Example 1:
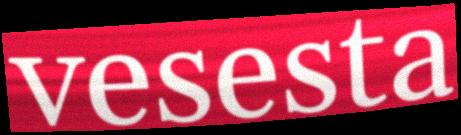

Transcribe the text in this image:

vesesta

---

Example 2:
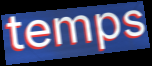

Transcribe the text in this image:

temps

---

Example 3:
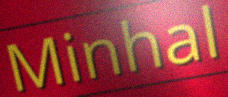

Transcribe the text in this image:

Minhal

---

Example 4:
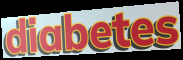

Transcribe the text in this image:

diabetes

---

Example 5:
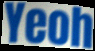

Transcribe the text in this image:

Yeoh